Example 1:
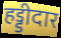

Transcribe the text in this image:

हड्डीदार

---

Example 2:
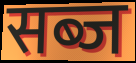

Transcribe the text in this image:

सब्ज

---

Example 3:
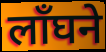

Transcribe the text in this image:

लाँघने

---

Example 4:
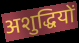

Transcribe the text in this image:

अशुद्धियों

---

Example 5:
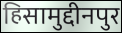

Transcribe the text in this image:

हिसामुद्दीनपुर